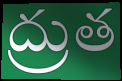
ద్రుత